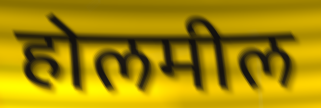
होलमील